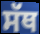
ਸੱਥ